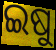
ଇଷୁ